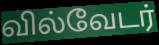
வில்வேடர்